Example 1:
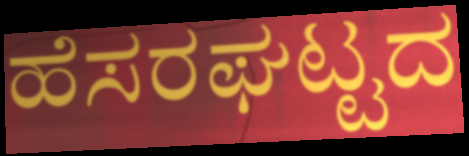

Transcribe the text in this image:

ಹೆಸರಘಟ್ಟದ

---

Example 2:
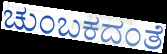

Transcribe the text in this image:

ಚುಂಬಕದಂತೆ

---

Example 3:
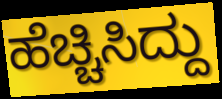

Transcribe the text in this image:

ಹೆಚ್ಚಿಸಿದ್ದು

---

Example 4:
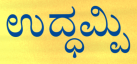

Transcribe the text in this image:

ಉದ್ಧಮ್ಪಿ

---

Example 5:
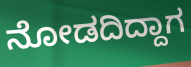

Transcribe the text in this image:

ನೋಡದಿದ್ದಾಗ